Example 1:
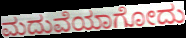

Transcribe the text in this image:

ಮದುವೆಯಾಗೋದು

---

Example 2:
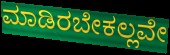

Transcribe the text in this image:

ಮಾಡಿರಬೇಕಲ್ಲವೇ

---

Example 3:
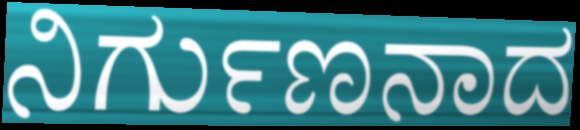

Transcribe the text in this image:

ನಿರ್ಗುಣನಾದ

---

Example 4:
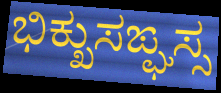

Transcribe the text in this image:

ಭಿಕ್ಖುಸಙ್ಘಸ್ಸ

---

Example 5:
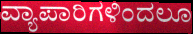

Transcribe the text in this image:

ವ್ಯಾಪಾರಿಗಳಿಂದಲೂ